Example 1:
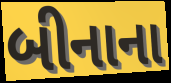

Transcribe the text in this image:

બીનાના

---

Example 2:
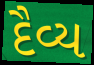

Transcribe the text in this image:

દૈવ્ય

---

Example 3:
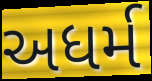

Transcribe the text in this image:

અધર્મ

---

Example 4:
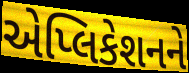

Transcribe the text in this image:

એપ્લિકેશનને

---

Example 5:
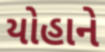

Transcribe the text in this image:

યોહાને